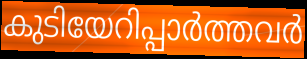
കുടിയേറിപ്പാർത്തവർ